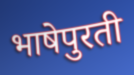
भाषेपुरती